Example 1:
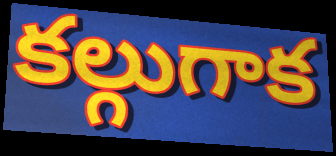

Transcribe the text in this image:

కల్గుగాక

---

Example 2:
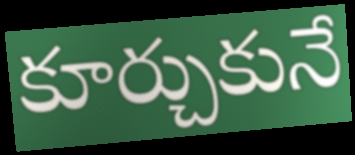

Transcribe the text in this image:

కూర్చుకునే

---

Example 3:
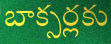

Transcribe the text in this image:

బాక్సర్లకు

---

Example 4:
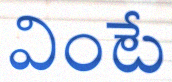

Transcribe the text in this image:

వింటే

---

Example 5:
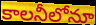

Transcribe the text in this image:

కాలనీలోనూ